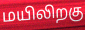
மயிலிறகு